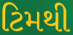
ટિમથી